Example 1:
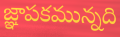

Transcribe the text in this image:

జ్ఞాపకమున్నది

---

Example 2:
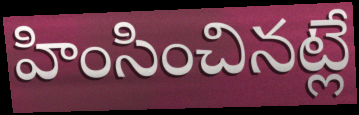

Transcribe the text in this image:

హింసించినట్లే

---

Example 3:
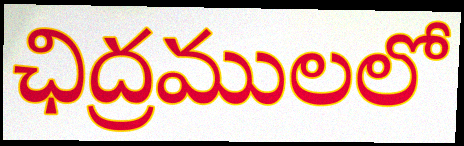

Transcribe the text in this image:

ఛిద్రములలో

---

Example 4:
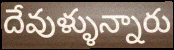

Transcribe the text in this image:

దేవుళ్ళున్నారు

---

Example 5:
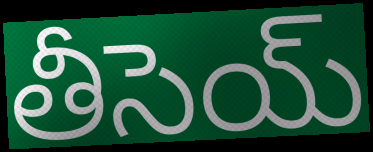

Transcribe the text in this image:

తీసెయ్